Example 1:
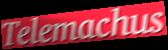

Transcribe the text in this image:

Telemachus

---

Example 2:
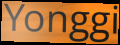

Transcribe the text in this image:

Yonggi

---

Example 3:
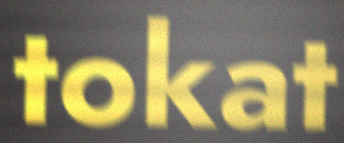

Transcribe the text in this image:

tokat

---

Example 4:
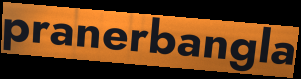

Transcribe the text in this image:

pranerbangla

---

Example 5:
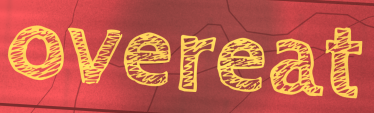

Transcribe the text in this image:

overeat